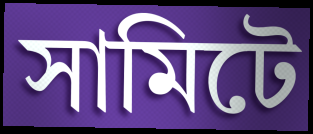
সামিটে